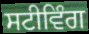
ਸਟੀਵਿੰਗ